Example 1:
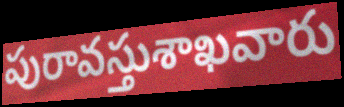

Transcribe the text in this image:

పురావస్తుశాఖవారు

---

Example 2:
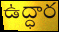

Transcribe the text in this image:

ఉద్ధార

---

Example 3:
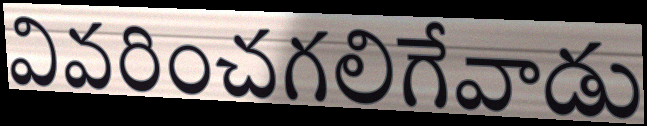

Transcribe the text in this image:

వివరించగలిగేవాడు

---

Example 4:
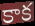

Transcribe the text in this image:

కాక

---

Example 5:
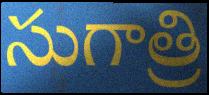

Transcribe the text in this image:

సుగాత్రి